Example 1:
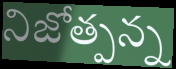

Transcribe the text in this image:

నిజోత్పన్న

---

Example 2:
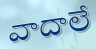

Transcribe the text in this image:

వాదాలే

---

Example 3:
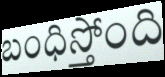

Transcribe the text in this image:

బంధిస్తోంది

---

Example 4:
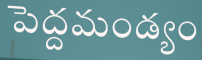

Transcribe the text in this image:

పెద్దమండ్యం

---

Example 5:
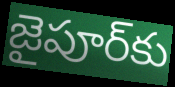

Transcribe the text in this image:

జైపూర్‌కు